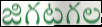
జిగటగల